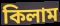
কিলাম